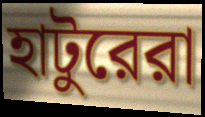
হাটুরেরা